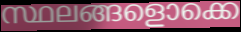
സ്ഥലങ്ങളൊക്കെ